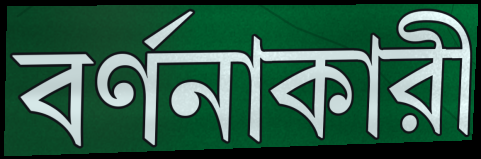
বর্ণনাকারী